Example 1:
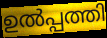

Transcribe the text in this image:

ഉൽപ്പത്തി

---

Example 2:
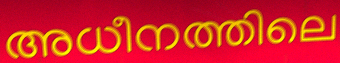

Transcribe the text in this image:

അധീനത്തിലെ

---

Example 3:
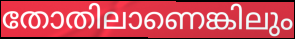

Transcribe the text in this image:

തോതിലാണെങ്കിലും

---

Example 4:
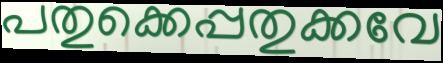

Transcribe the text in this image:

പതുക്കെപ്പതുക്കവേ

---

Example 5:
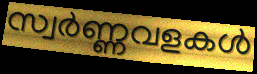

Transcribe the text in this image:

സ്വർണ്ണവളകൾ